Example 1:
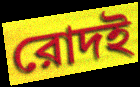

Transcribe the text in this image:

রোদই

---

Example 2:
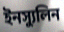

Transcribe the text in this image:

ইনস্যুলিন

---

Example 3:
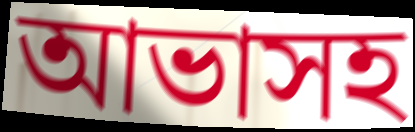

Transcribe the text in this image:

আভাসহ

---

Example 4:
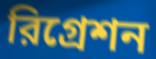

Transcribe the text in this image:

রিগ্রেশন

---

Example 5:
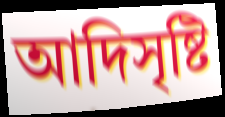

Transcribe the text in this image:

আদিসৃষ্টি